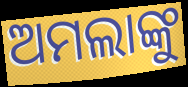
ଅମଲାଙ୍କୁ